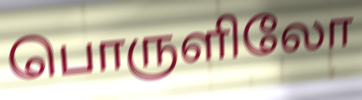
பொருளிலோ